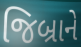
જિબ્રાને